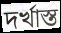
দৰ্খাস্ত